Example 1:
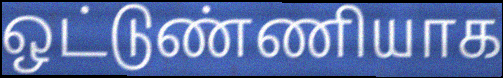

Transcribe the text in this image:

ஒட்டுண்ணியாக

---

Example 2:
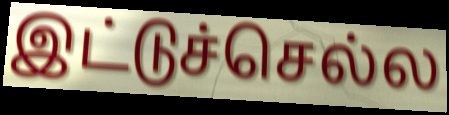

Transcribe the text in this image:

இட்டுச்செல்ல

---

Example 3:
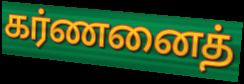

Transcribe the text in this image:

கர்ணனைத்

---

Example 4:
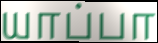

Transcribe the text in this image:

யாப்பா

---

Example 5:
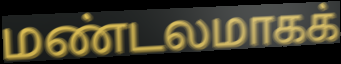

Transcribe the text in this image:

மண்டலமாகக்